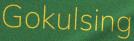
Gokulsing